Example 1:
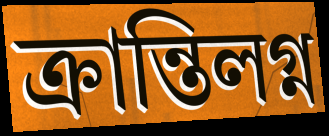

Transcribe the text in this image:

ক্রান্তিলগ্ন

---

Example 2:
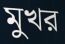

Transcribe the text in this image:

মুখর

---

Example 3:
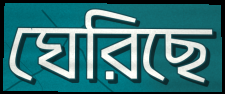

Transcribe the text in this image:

ঘেরিছে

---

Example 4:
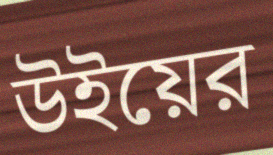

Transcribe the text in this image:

উইয়ের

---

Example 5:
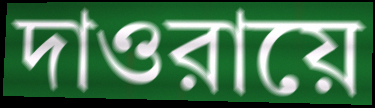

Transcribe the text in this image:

দাওরায়ে